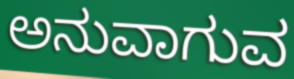
ಅನುವಾಗುವ